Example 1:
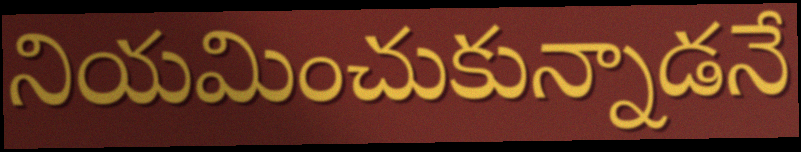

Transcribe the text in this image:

నియమించుకున్నాడనే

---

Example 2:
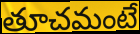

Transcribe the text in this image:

తూచమంటే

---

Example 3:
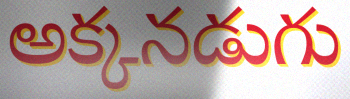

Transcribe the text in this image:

అక్కనడుగు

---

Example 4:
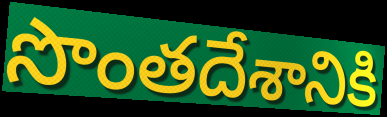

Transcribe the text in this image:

సొంతదేశానికి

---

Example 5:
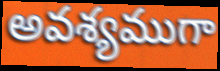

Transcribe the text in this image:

అవశ్యముగా